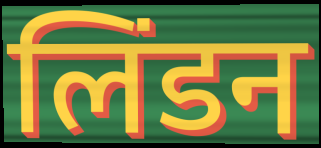
लिंडन